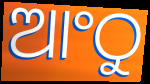
ଆଂଠୁ